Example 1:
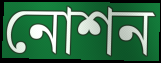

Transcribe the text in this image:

নোশন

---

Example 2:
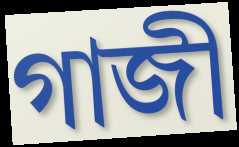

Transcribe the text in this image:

গাজী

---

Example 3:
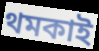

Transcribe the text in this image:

থমকাই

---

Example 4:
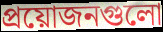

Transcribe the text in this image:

প্রয়োজনগুলো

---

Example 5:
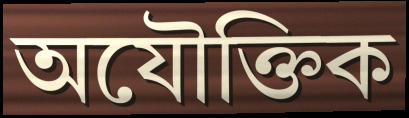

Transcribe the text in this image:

অযৌক্তিক